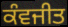
ਕੰਵਜੀਤ